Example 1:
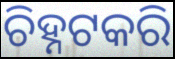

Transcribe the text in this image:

ଚିହ୍ନଟକରି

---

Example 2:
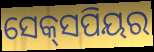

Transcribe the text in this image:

ସେକ୍‍ସପିୟର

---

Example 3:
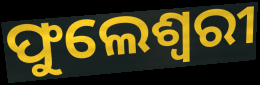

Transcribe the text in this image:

ଫୁଲେଶ୍ବରୀ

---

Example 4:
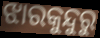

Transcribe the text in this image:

ଝାରକୁନ୍ଦୁରୁ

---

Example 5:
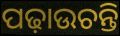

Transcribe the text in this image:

ପଢ଼ାଉଚନ୍ତି